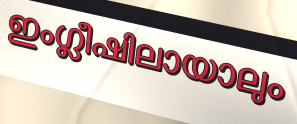
ഇംഗ്ലീഷിലായാലും